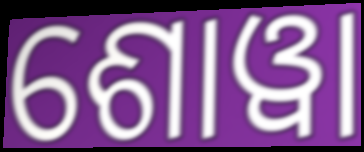
ଶୋୱା